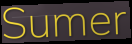
Sumer